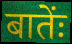
बातेंः